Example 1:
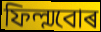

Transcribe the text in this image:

ফিল্মবোৰ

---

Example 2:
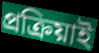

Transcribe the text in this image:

প্ৰক্ৰিয়াই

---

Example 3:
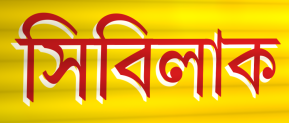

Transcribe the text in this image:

সিবিলাক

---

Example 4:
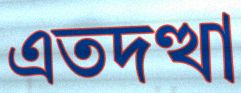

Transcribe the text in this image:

এতদত্থা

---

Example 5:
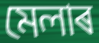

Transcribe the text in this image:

মেলাৰ